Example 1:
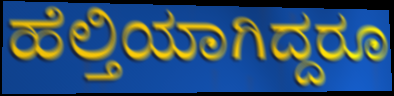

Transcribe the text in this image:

ಹೆಲ್ತಿಯಾಗಿದ್ದರೂ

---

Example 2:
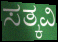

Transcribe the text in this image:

ಸತ್ಕವಿ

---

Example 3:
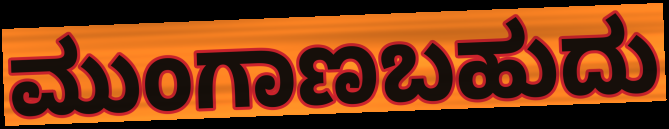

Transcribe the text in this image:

ಮುಂಗಾಣಬಹುದು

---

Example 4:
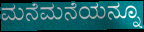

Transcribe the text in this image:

ಮನೆಮನೆಯನ್ನೂ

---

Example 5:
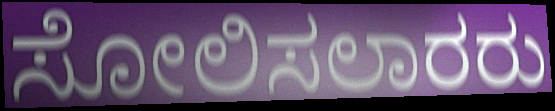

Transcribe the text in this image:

ಸೋಲಿಸಲಾರರು